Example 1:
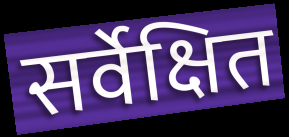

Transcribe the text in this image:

सर्वेक्षित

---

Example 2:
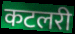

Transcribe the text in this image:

कटलरी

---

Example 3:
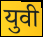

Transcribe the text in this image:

युवी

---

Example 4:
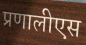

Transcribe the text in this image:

प्रणालीएस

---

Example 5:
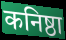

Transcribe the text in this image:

कनिष्ठा